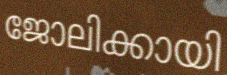
ജോലിക്കായി